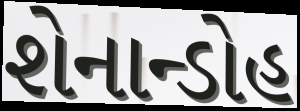
શેનાન્ડોહ